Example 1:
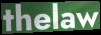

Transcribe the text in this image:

thelaw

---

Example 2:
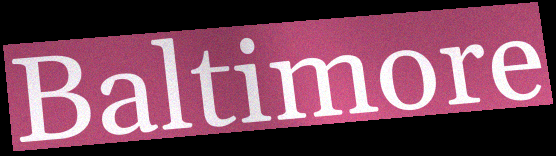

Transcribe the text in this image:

Baltimore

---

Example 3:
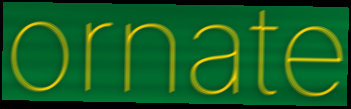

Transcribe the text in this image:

ornate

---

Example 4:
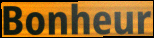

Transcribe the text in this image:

Bonheur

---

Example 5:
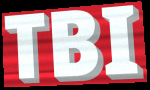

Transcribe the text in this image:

TBI